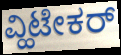
ವ್ಹಿಟೇಕರ್